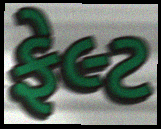
ફેલ્ટ